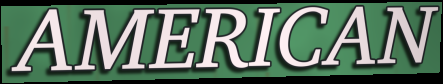
AMERICAN